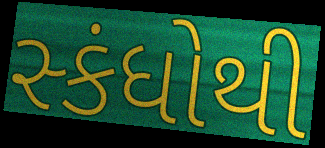
સ્કંધોથી